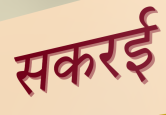
सकरई